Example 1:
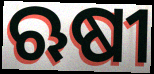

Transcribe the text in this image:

ଋଷୀ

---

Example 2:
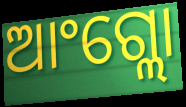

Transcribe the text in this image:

ଆଂଗ୍ଲୋ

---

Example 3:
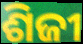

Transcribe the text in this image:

ଶିଜୀ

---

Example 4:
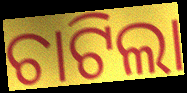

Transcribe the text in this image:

ଚାଟିଲା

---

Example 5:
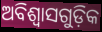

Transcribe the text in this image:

ଅବିଶ୍ଵାସଗୁଡ଼ିକ